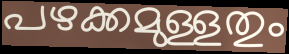
പഴക്കമുള്ളതും